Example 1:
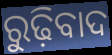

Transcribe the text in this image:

ରୁଢ଼ିବାଦ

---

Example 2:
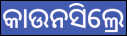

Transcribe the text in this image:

କାଉନସିଲ୍ରେ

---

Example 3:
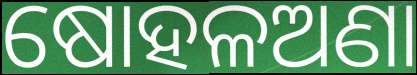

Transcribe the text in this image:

ଷୋହଳଅଣା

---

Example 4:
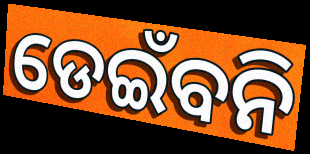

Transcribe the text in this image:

ଡେଇଁବନି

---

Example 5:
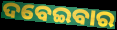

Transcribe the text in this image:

ଦବେଇବାର